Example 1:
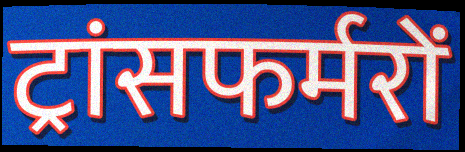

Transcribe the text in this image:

ट्रांसफर्मरों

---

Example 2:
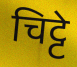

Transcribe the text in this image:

चिट्टे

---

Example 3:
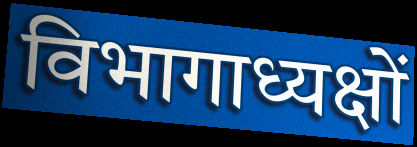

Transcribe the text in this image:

विभागाध्यक्षों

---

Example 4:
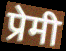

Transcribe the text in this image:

प्रेमी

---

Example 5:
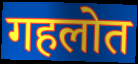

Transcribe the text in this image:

गहलोत